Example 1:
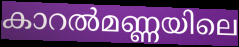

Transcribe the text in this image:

കാറൽമണ്ണയിലെ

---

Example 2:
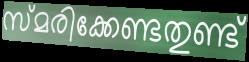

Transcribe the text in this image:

സ്മരിക്കേണ്ടതുണ്ട്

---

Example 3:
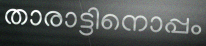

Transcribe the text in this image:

താരാട്ടിനൊപ്പം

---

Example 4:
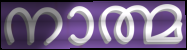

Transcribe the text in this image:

നാത്മ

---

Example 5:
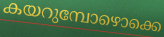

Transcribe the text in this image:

കയറുമ്പോഴൊക്കെ